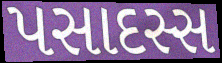
પસાદસ્સ